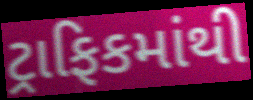
ટ્રાફિકમાંથી